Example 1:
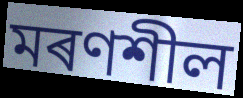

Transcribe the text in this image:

মৰণশীল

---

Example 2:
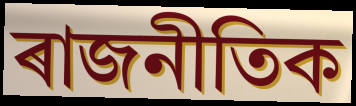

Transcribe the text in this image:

ৰাজনীতিক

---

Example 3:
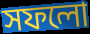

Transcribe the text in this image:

সফলো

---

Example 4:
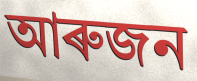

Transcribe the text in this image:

আৰুজন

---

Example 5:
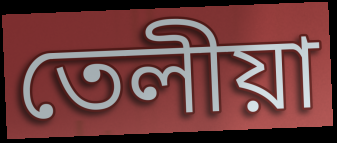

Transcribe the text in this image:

তেলীয়া